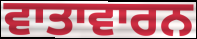
ਵਾਤਾਵਾਰਨ